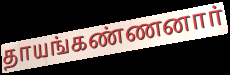
தாயங்கண்ணனார்